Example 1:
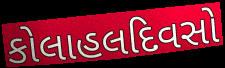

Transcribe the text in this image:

કોલાહલદિવસો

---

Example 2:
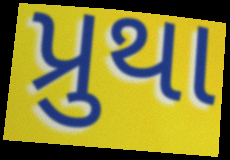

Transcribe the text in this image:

પ્રુથા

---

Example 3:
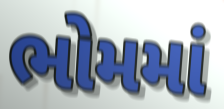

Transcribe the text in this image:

ભોમમાં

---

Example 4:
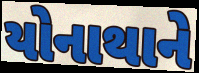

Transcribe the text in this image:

યોનાથાને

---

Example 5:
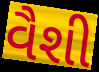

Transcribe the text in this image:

વૈશી